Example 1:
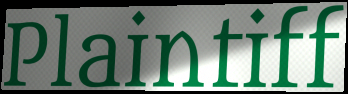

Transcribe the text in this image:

Plaintiff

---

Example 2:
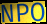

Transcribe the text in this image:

NPO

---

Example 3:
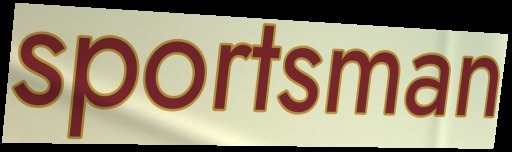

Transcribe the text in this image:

sportsman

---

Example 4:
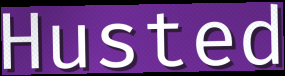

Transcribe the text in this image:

Husted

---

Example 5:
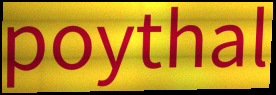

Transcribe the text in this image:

poythal